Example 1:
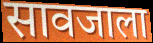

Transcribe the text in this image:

सावजाला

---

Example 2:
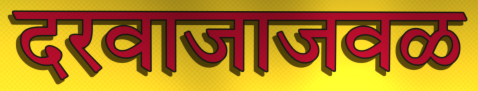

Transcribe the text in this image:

दरवाजाजवळ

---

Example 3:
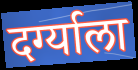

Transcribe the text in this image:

दर्ग्याला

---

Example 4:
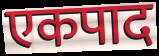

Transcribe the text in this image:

एकपाद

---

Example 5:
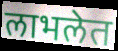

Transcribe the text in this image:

लाभलेत